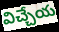
విచ్చేయ